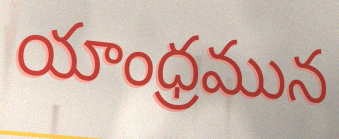
యాంధ్రమున